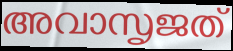
അവാസൃജത്